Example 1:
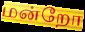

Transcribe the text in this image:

மன்றோ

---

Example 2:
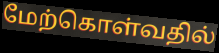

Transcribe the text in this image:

மேற்கொள்வதில்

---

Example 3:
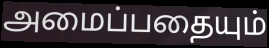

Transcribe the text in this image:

அமைப்பதையும்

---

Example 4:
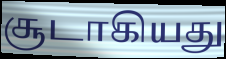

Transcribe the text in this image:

சூடாகியது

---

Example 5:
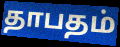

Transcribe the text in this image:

தாபதம்